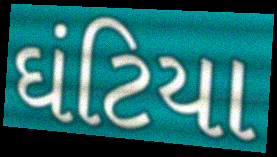
ઘંટિયા